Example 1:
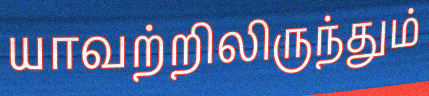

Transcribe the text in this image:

யாவற்றிலிருந்தும்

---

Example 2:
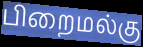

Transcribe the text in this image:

பிறைமல்கு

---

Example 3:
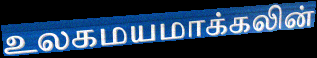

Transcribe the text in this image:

உலகமயமாக்கலின்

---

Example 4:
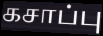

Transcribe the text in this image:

கசாப்பு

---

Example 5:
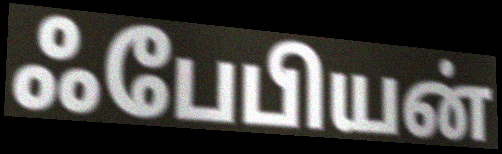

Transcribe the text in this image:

ஃபேபியன்